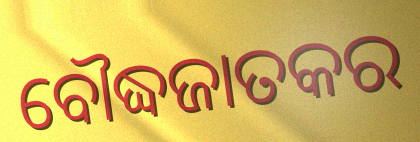
ବୌଦ୍ଧଜାତକର